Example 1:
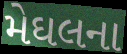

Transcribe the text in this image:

મેઘલના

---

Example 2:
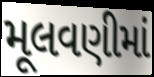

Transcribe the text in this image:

મૂલવણીમાં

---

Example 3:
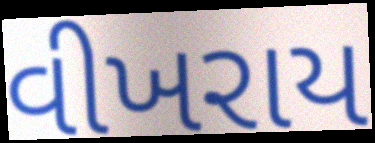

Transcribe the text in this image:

વીખરાય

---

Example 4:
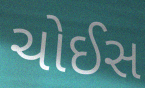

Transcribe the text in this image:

ચોઈસ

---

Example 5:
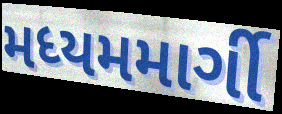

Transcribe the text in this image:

મધ્યમમાર્ગી